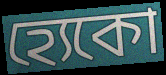
হ্যেকো